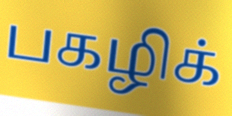
பகழிக்